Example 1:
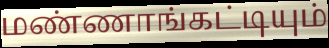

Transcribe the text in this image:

மண்ணாங்கட்டியும்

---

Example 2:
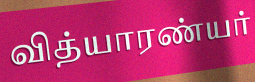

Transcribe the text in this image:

வித்யாரண்யர்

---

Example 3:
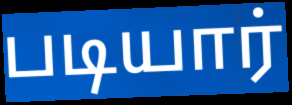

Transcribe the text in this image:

படியார்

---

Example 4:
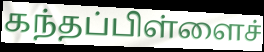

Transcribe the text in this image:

கந்தப்பிள்ளைச்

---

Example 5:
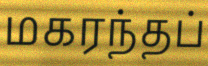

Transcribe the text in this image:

மகரந்தப்